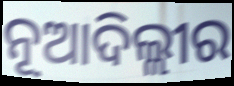
ନୂଆଦିଲ୍ଲୀର